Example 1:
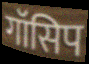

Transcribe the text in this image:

गॉसिप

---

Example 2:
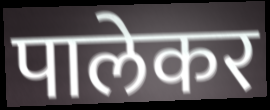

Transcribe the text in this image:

पालेकर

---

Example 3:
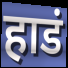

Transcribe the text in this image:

हाडं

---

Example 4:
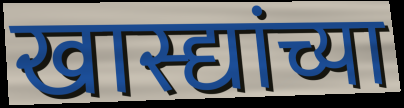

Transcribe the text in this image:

खास्द्यांच्या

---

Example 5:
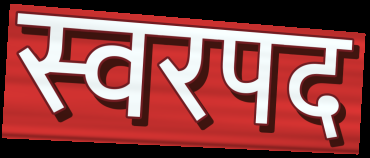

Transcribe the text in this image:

स्वरपद